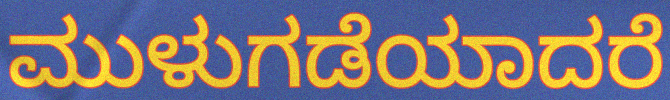
ಮುಳುಗಡೆಯಾದರೆ